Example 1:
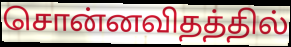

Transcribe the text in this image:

சொன்னவிதத்தில்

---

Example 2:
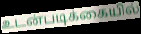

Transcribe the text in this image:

உடன்படிக்கையில்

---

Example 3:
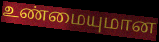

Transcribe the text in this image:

உண்மையுமான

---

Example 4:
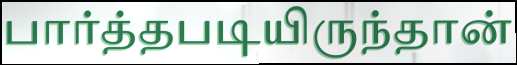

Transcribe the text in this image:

பார்த்தபடியிருந்தான்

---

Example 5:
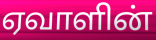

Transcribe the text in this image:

ஏவாளின்